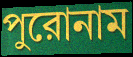
পুরোনাম